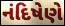
નંદિષેણે